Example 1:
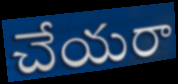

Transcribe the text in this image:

చేయరా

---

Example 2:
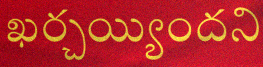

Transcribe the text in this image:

ఖర్చయ్యిందని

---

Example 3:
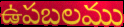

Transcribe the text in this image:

ఉపబలము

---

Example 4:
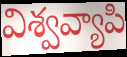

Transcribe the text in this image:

విశ్వవ్యాపి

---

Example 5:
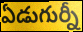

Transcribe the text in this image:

ఏడుగుర్నీ